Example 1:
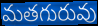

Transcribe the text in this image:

మతగురువు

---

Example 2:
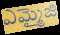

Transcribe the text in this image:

ఎమ్మైజి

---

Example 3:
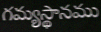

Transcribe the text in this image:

గమ్యస్థానము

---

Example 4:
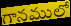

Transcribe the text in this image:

గానములో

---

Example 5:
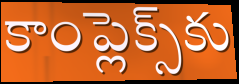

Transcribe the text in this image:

కాంప్లెక్స్‌కు